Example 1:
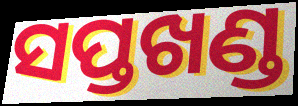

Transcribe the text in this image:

ସପ୍ତଖଣ୍ଡ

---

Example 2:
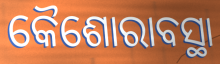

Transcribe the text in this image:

କୈଶୋରାବସ୍ଥା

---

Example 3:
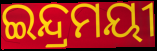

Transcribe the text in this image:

ଇନ୍ଦ୍ରମୟୀ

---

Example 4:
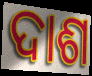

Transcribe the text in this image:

ଦାଶ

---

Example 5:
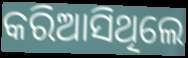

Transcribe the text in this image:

କରିଆସିଥିଲେ